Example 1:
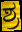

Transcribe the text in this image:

ಶ್ರ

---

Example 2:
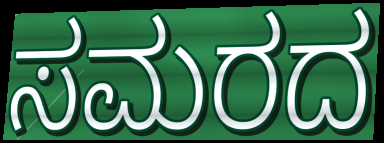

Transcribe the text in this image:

ಸಮರದ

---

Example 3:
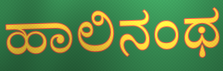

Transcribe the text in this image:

ಹಾಲಿನಂಥ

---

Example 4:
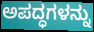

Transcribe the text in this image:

ಅಪದ್ಧಗಳನ್ನು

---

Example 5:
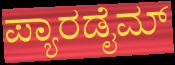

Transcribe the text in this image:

ಪ್ಯಾರಡೈಮ್